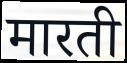
मारती